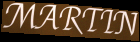
MARTIN